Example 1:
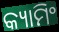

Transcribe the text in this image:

କ୍ୟାମିଂ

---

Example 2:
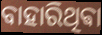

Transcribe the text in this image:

ବାହାରିଥିଵା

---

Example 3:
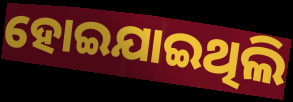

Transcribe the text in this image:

ହୋଇଯାଇଥିଲି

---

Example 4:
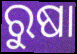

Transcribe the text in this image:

ରୁଷା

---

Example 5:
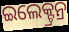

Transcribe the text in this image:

ଇଲେକ୍ଟ୍ରନ୍ର